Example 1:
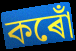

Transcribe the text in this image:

কৰোঁ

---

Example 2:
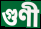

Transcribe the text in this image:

গুণী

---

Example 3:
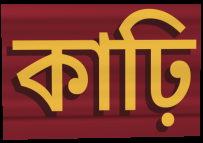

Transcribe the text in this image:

কাঢ়ি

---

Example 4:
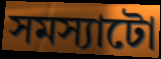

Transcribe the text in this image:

সমস্যাটো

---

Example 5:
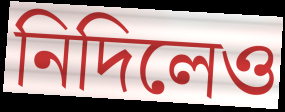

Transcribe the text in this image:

নিদিলেও